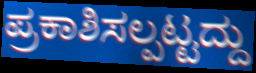
ಪ್ರಕಾಶಿಸಲ್ಪಟ್ಟದ್ದು